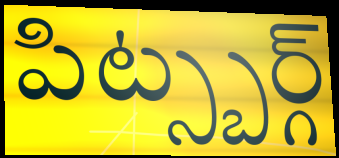
పిట్స్బర్గ్